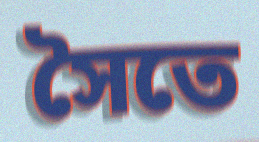
সৈতে